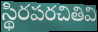
స్థిరపరచితివి